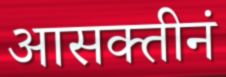
आसक्तीनं